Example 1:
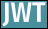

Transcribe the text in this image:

JWT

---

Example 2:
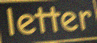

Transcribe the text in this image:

letter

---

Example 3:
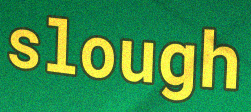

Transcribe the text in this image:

slough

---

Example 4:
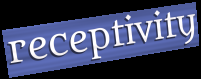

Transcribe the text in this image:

receptivity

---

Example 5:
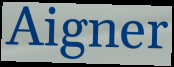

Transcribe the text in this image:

Aigner